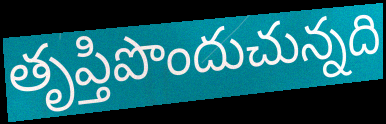
తృప్తిపొందుచున్నది